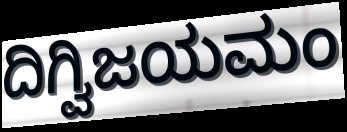
ದಿಗ್ವಿಜಯಮಂ